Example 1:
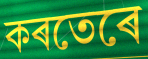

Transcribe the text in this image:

কৰতেৰে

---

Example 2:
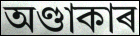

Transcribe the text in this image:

অণ্ডাকাৰ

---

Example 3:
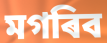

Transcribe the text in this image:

মগৰিব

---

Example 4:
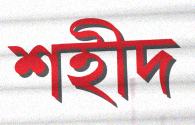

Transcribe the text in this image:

শহীদ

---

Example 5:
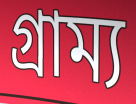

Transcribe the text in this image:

গ্ৰাম্য